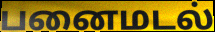
பனைமடல்